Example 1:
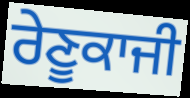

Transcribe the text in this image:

ਰੇਣੂਕਾਜੀ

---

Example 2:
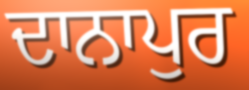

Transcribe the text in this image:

ਦਾਨਾਪੁਰ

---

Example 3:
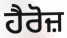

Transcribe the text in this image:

ਹੈਰੋਜ਼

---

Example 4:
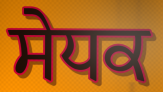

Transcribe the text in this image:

ਸੇਧਕ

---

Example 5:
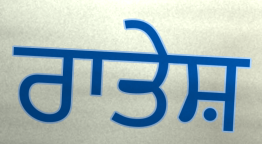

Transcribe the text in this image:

ਰਾਤੇਸ਼